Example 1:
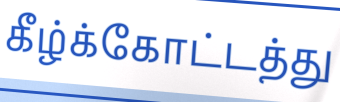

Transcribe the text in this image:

கீழ்க்கோட்டத்து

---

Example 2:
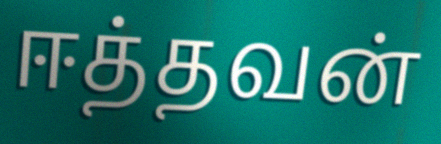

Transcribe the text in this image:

ஈத்தவன்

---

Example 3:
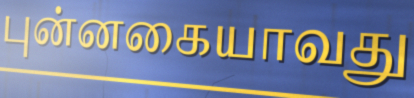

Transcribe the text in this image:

புன்னகையாவது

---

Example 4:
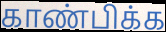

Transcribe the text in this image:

காண்பிக்க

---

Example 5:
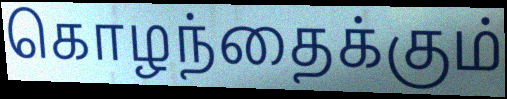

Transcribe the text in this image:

கொழந்தைக்கும்